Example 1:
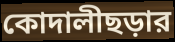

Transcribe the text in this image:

কোদালীছড়ার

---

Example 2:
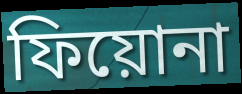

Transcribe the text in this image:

ফিয়োনা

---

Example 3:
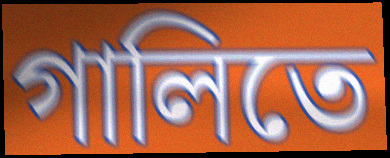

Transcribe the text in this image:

গালিতে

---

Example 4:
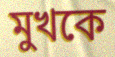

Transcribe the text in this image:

মুখকে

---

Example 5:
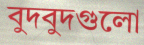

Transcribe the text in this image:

বুদবুদগুলো